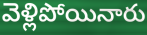
వెళ్లిపోయినారు